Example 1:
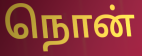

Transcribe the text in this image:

நொன்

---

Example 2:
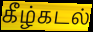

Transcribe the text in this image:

கீழ்கடல்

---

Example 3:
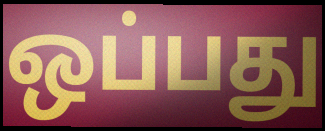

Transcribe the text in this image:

ஒப்பது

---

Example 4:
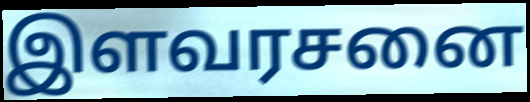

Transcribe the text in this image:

இளவரசனை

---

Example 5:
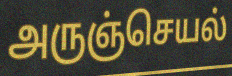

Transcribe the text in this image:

அருஞ்செயல்